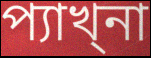
প্যাখ্না